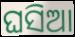
ଘସିଆ